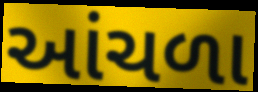
આંચળા